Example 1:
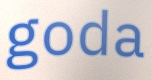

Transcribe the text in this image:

goda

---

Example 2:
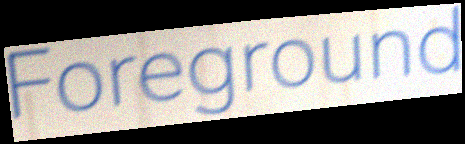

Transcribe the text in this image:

Foreground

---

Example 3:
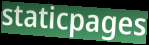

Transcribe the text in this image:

staticpages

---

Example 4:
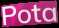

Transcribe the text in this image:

Pota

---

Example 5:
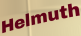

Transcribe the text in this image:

Helmuth